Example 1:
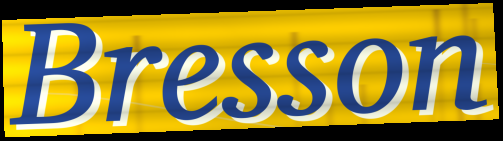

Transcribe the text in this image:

Bresson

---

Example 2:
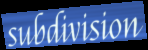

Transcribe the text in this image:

subdivision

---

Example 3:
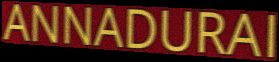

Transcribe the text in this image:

ANNADURAI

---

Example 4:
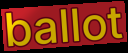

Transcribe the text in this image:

ballot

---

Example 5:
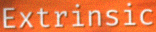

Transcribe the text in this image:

Extrinsic